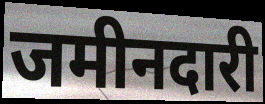
जमीनदारी